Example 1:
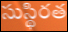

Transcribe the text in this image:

సుస్థిరత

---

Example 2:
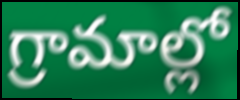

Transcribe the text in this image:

గ్రామాల్లో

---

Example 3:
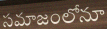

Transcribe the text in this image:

సమాజంలోనూ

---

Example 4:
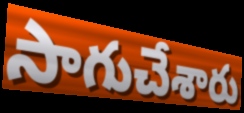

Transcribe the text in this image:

సాగుచేశారు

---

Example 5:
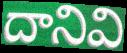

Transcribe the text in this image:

దానివి